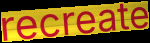
recreate